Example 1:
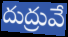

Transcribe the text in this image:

దుద్రువే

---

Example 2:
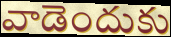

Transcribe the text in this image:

వాడెందుకు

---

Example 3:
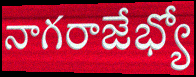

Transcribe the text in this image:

నాగరాజేభ్యో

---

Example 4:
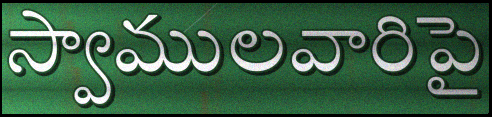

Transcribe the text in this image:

స్వాములవారిపై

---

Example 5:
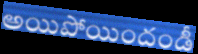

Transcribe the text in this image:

అయిపోయిందండీ